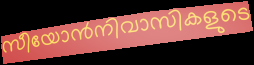
സീയോൻനിവാസികളുടെ